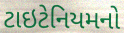
ટાઇટેનિયમનો